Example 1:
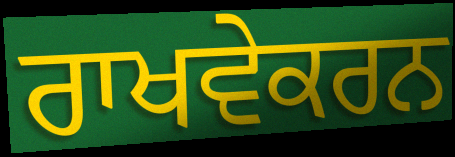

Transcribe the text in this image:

ਰਾਖਵੇਕਰਨ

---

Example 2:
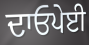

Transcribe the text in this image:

ਦਾਓਪੇਈ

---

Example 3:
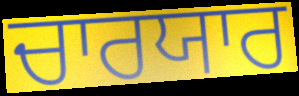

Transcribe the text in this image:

ਚਾਰਯਾਰ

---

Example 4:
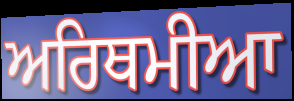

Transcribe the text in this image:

ਅਰਿਥਮੀਆ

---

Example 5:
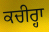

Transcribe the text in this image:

ਕਚੀਰ੍ਹਾ